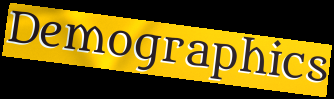
Demographics